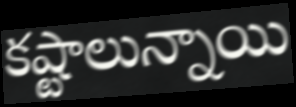
కష్టాలున్నాయి